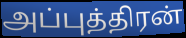
அப்புத்திரன்